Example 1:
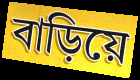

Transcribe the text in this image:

বাড়িয়ে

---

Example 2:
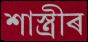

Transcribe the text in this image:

শাস্ত্ৰীৰ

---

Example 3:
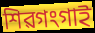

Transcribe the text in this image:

শিৱগংগাই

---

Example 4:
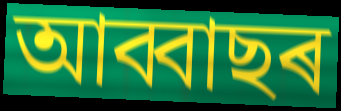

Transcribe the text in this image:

আব্বাছৰ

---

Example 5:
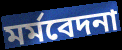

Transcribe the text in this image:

মৰ্মবেদনা